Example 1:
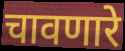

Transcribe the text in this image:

चावणारे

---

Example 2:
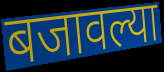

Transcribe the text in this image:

बजावल्या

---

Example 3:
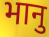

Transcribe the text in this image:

भानु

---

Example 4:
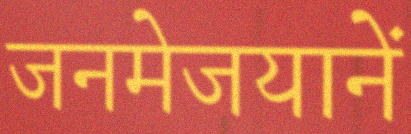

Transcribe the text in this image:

जनमेजयानें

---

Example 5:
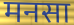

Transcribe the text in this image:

मनसा